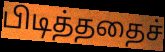
பிடித்ததைச்